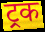
ट्रक